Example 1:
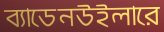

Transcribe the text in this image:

ব্যাডেনউইলারে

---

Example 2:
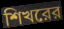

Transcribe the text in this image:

শিখরের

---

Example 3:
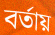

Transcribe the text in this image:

বর্তায়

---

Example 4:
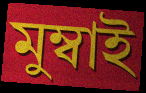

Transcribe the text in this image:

মুম্বাই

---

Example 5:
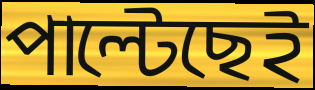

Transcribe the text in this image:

পাল্টেছেই